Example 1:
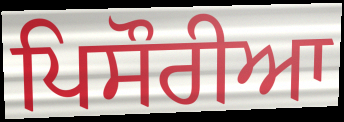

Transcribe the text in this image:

ਪਿਸੌਰੀਆ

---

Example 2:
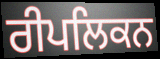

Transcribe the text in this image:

ਰੀਪਲਿਕਨ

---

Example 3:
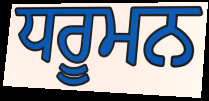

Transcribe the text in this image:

ਧਰੂਮਨ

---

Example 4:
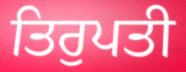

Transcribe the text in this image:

ਤਿਰੁਪਤੀ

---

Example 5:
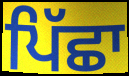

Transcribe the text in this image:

ਪਿੱਛਾ